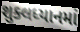
શુક્લધ્યાનમાં